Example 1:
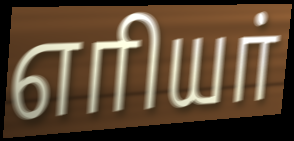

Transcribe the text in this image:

எரியர்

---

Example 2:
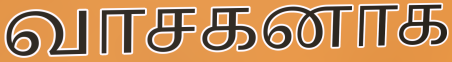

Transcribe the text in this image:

வாசகனாக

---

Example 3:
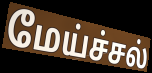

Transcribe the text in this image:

மேய்ச்சல்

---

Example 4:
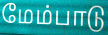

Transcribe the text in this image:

மேம்பாடு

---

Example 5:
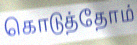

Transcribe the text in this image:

கொடுத்தோம்